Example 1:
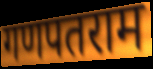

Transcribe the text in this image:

गणपतराम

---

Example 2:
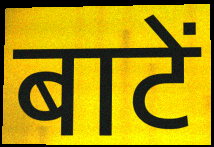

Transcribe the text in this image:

बाटें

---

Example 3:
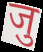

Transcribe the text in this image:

जु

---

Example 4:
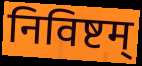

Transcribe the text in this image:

निविष्टम्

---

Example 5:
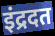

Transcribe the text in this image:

इंद्रदत